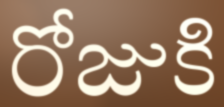
రోజుకి